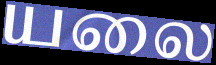
யலை